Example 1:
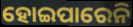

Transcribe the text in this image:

ହୋଇପାରେନି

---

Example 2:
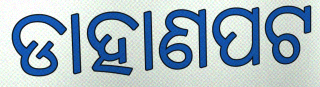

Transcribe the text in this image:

ଡାହାଣପଟ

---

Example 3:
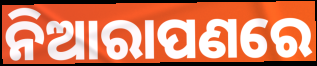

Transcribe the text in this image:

ନିଆରାପଣରେ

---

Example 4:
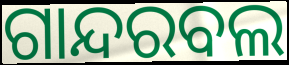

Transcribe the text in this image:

ଗାନ୍ଦରବଲ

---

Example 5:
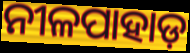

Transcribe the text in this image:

ନୀଳପାହାଡ଼